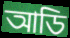
আডি